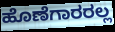
ಹೊಣೆಗಾರರಲ್ಲ